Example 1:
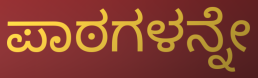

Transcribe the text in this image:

ಪಾಠಗಳನ್ನೇ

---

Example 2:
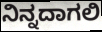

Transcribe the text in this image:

ನಿನ್ನದಾಗಲಿ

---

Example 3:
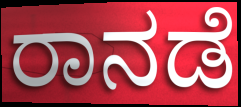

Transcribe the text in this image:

ರಾನಡೆ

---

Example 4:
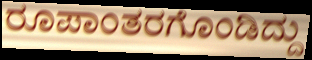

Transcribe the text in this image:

ರೂಪಾಂತರಗೊಂಡಿದ್ದು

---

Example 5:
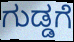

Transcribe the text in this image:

ಗುಡ್ಡಗೆ